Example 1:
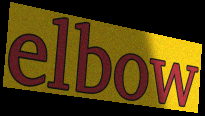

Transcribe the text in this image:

elbow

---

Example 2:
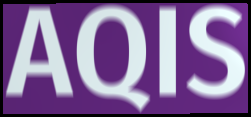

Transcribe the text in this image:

AQIS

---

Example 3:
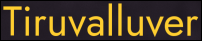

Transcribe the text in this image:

Tiruvalluver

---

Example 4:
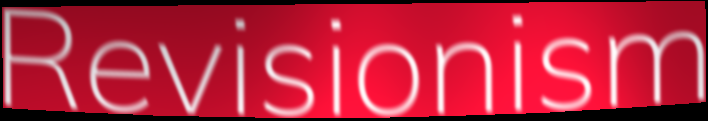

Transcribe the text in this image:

Revisionism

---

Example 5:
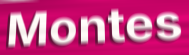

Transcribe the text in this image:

Montes